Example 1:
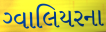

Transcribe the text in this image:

ગ્વાલિયરના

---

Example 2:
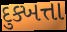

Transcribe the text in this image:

દુક્ખત્તા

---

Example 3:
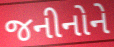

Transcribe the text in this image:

જનીનોને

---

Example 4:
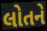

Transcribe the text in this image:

લોતને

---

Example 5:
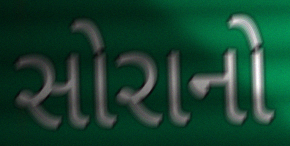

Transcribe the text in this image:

સોરાનો